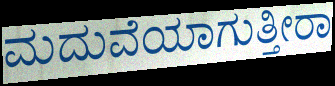
ಮದುವೆಯಾಗುತ್ತೀರಾ